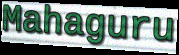
Mahaguru